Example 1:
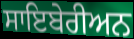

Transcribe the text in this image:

ਸਾਇਬੇਰੀਅਨ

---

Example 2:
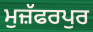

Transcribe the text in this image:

ਮੁਜ਼ੱਫਰਪੁਰ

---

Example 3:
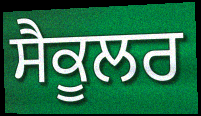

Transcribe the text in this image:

ਸੈਕੂਲਰ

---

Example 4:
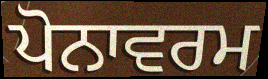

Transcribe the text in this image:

ਪੋਨਾਵਰਮ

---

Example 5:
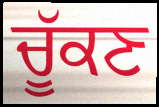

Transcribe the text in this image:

ਚੂੱਕਣ